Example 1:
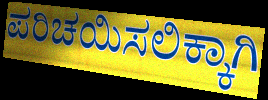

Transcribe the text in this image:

ಪರಿಚಯಿಸಲಿಕ್ಕಾಗಿ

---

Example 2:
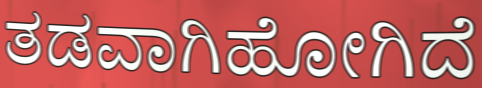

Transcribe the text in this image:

ತಡವಾಗಿಹೋಗಿದೆ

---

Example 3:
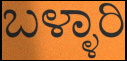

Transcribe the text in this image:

ಬಳ್ಳಾರಿ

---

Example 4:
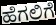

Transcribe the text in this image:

ಹೆಗಲಿಗೆ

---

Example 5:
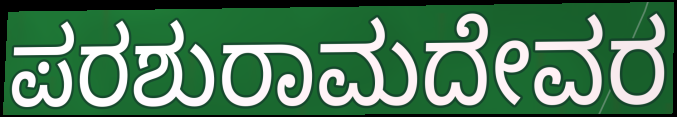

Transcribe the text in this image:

ಪರಶುರಾಮದೇವರ